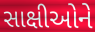
સાક્ષીઓને